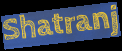
Shatranj